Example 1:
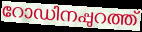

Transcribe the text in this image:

റോഡിനപ്പുറത്ത്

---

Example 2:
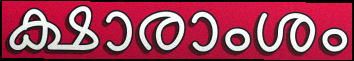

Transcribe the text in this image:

ക്ഷാരാംശം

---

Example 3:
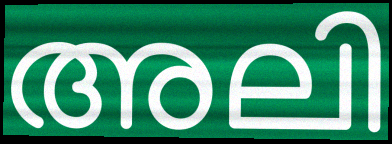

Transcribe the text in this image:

അലി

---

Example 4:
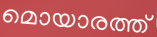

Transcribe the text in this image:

മൊയാരത്ത്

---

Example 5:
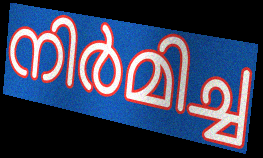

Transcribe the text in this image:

നിർമിച്ച